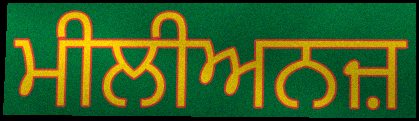
ਮੀਲੀਅਨਜ਼